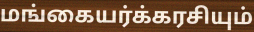
மங்கையர்க்கரசியும்